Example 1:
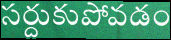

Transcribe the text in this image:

సర్దుకుపోవడం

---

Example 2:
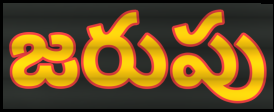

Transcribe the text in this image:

జరుపు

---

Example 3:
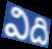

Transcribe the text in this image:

విది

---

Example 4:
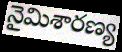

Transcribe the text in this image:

నైమిశారణ్య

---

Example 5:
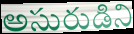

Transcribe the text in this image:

అసురుడిని